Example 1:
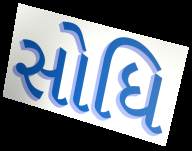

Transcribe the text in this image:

સોધિ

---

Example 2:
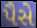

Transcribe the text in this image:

પૈસે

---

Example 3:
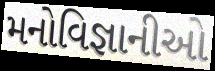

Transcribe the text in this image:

મનોવિજ્ઞાનીઓ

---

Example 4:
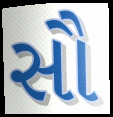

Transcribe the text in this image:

સૌ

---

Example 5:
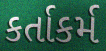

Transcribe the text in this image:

કર્તાકર્મ